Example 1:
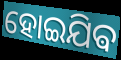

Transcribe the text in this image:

ହୋଇଯିଵ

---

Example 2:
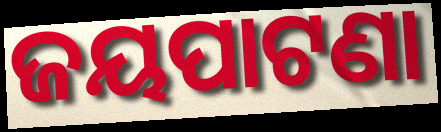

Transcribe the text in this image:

ଜୟପାଟଣା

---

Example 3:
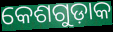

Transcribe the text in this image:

କେଶଗୁଡ଼ାକ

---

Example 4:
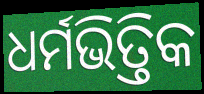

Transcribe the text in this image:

ଧର୍ମଭିତ୍ତିକ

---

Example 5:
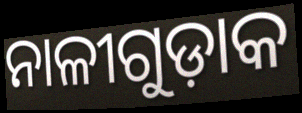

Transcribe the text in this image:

ନାଳୀଗୁଡ଼ାକ